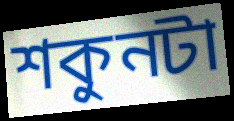
শকুনটা